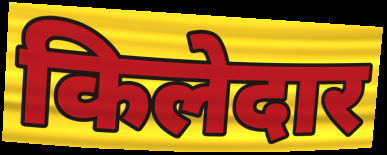
किलेदार